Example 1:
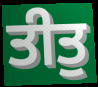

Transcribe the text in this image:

ਤੀਤੁ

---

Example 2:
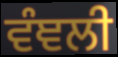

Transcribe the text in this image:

ਵੰਞਲੀ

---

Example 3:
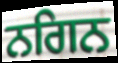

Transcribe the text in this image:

ਨਗਿਨ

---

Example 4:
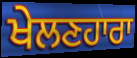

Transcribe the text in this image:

ਖੇਲਣਹਾਰਾ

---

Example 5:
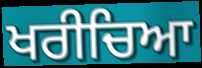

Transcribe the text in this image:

ਖਰੀਚਿਆ